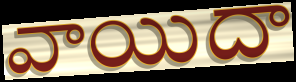
వాయిదా